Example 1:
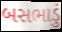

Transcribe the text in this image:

બસભાડું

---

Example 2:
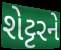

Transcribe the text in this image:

શેટ્ટરને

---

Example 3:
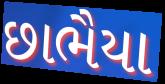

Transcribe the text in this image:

છાભૈયા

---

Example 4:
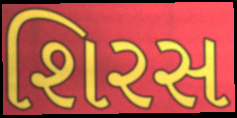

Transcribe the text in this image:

શિરસ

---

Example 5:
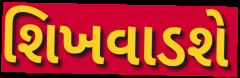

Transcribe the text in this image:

શિખવાડશે